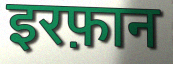
इरफ़ान